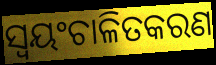
ସ୍ୱୟଂଚାଳିତକରଣ